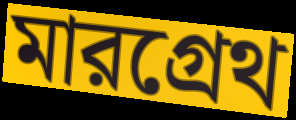
মারগ্রেথ